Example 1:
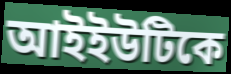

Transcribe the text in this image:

আইইউটিকে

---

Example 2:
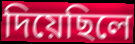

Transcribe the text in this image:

দিয়েছিলে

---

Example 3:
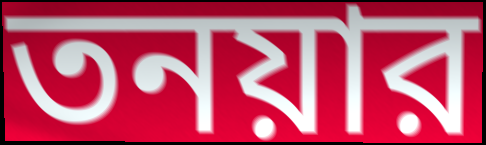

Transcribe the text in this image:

তনয়ার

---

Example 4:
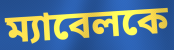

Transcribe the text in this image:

ম্যাবেলকে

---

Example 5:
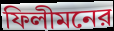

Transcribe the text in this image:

ফিলীমনের